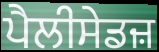
ਪੈਲੀਸੇਡਜ਼